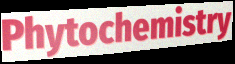
Phytochemistry